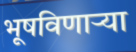
भूषविणार्‍या